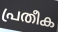
പ്രതീക